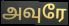
அவுரே